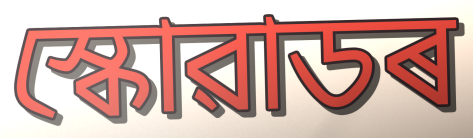
স্কোৱাডৰ